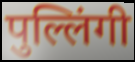
पुल्लिंगी